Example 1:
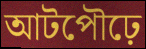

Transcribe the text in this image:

আটপৌঢ়ে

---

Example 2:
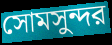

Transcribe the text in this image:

সোমসুন্দর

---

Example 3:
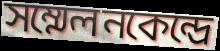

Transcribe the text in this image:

সম্মেলনকেন্দ্রে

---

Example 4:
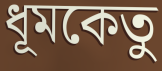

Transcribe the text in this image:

ধূমকেতু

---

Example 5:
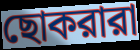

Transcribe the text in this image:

ছোকরারা